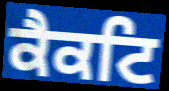
ਕੈਕਟਿ